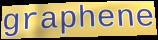
graphene